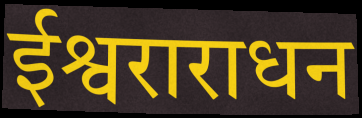
ईश्वराराधन